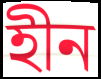
হীন